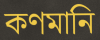
কণমানি